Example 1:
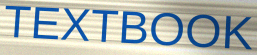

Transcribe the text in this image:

TEXTBOOK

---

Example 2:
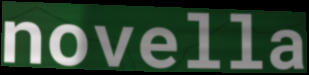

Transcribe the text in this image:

novella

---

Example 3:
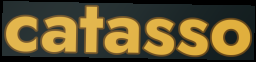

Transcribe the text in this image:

catasso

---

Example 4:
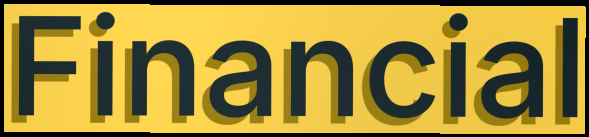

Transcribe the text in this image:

Financial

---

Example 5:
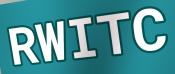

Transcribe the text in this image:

RWITC